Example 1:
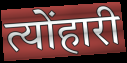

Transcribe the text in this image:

त्योंहारी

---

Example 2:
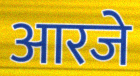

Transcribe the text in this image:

आरजे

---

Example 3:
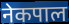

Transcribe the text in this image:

नेकपाल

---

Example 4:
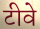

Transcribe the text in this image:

टीवे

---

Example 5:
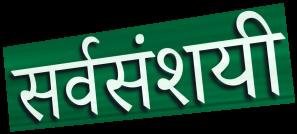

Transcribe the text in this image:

सर्वसंशयी